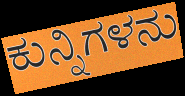
ಕುನ್ನಿಗಳನು